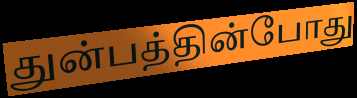
துன்பத்தின்போது